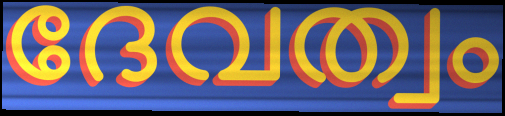
ദേവത്വം